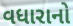
વધારાનો